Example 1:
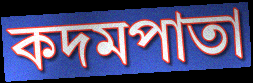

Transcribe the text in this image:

কদমপাতা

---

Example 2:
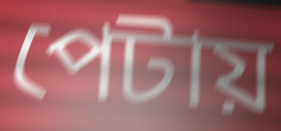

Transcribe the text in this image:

পেটায়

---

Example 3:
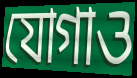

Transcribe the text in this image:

যোগাও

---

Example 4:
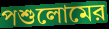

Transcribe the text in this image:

পশুলোমের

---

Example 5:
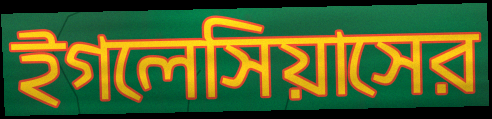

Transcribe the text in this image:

ইগলেসিয়াসের